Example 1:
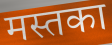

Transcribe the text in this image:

मस्तका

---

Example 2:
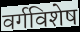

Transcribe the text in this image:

वर्गविशेष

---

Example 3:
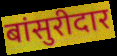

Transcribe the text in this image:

बांसुरीदार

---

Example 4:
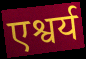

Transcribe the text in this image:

एश्वर्य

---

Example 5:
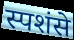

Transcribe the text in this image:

स्पशंसे